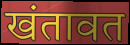
खंतावत